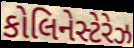
કોલિનેસ્ટેરેઝ